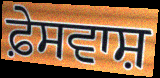
ਫ਼ੇਸਵਾਸ਼